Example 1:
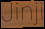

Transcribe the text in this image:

Jinji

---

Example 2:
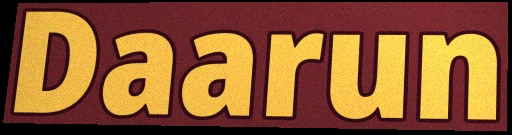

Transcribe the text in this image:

Daarun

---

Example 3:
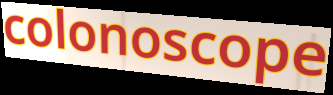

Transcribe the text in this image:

colonoscope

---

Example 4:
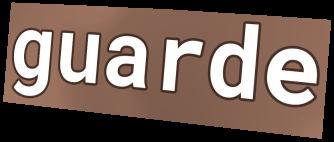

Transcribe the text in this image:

guarde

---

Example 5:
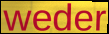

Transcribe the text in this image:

weder